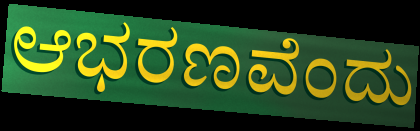
ಆಭರಣವೆಂದು